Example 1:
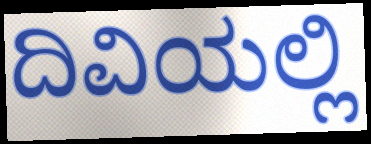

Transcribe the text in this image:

ದಿವಿಯಲ್ಲಿ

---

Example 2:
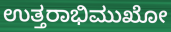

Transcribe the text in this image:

ಉತ್ತರಾಭಿಮುಖೋ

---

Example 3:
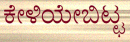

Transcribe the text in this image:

ಕೇಳಿಯೇಬಿಟ್ಟ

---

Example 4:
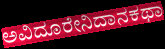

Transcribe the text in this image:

ಅವಿದೂರೇನಿದಾನಕಥಾ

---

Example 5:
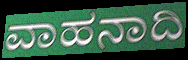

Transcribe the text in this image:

ವಾಹನಾದಿ